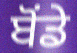
ਬੋਂਡੇ